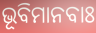
ଭୂବିମାନବାଃ